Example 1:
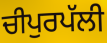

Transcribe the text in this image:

ਚੀਪੁਰਪੱਲੀ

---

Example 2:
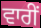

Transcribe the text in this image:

ਵਾਰੀਂ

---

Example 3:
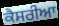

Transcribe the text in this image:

ਕੈਸਰੀਆ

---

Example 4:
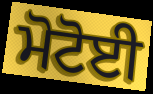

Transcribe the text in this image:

ਮੋਟੋਈ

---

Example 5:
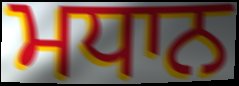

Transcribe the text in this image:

ਮਧਾਨ